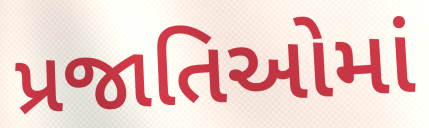
પ્રજાતિઓમાં